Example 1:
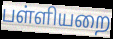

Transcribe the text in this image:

பள்ளியறை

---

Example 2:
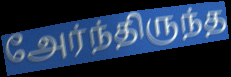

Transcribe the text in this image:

அேர்ந்திருந்த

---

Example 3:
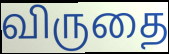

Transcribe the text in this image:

விருதை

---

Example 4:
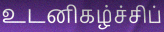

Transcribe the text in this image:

உடனிகழ்ச்சிப்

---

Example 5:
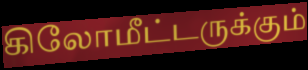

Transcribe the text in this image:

கிலோமீட்டருக்கும்